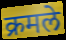
क्रमले